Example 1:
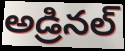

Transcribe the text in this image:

అడ్రినల్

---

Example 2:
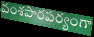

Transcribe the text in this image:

వంశపారపర్యంగా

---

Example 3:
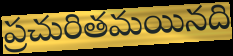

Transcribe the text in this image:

ప్రచురితమయినది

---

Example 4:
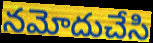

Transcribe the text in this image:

నమోదుచేసి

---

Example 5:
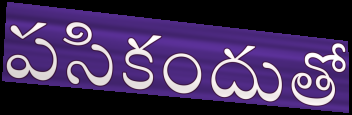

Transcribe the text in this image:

పసికందుతో